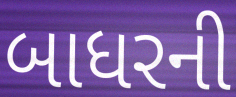
બાધરની